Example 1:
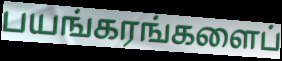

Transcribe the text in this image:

பயங்கரங்களைப்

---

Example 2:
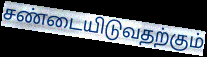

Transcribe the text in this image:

சண்டையிடுவதற்கும்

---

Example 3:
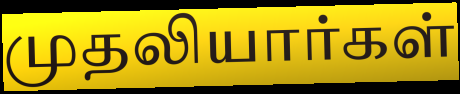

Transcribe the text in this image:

முதலியார்கள்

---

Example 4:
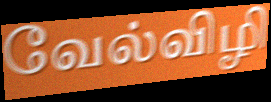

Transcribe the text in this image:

வேல்விழி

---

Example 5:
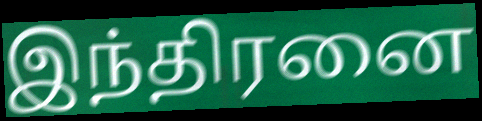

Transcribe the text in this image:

இந்திரனை